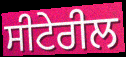
ਸੀਟੇਰੀਲ